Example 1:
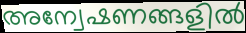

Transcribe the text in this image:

അന്വേഷണങ്ങളിൽ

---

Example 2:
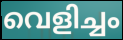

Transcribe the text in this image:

വെളിച്ചം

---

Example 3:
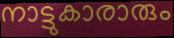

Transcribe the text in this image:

നാട്ടുകാരാരും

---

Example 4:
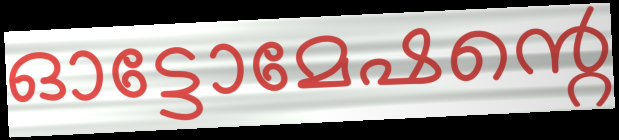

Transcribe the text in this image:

ഓട്ടോമേഷന്റെ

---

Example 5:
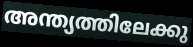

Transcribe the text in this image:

അന്ത്യത്തിലേക്കു